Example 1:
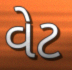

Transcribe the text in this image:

વેટ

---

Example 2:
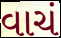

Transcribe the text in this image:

વાચં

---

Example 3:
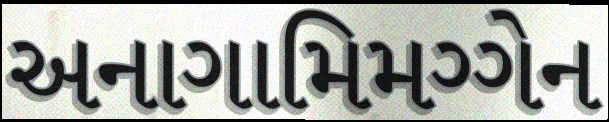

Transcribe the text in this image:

અનાગામિમગ્ગેન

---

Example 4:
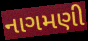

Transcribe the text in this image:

નાગમણી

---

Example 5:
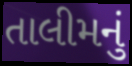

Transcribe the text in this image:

તાલીમનું